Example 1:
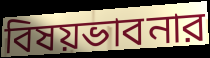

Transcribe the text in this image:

বিষয়ভাবনার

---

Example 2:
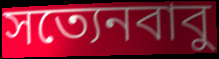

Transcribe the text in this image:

সত্যেনবাবু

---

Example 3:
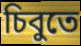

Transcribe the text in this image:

চিবুতে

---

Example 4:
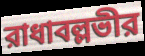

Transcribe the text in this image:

রাধাবল্লভীর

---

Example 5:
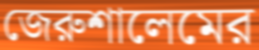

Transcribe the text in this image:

জেরুশালেমের